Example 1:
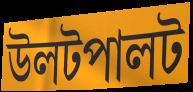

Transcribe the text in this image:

উলটপালট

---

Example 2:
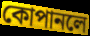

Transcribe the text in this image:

কোপানলে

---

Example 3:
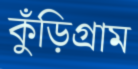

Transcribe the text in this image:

কুঁড়িগ্রাম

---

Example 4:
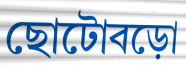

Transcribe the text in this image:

ছোটোবড়ো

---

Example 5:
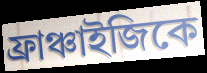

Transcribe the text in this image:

ফ্রাঞ্চাইজিকে